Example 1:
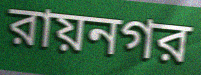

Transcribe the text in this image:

রায়নগর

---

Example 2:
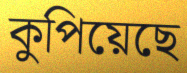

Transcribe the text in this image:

কুপিয়েছে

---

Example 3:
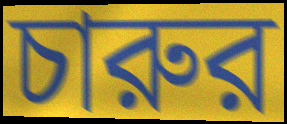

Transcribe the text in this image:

চারুর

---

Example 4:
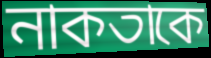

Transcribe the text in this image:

নাকতাকে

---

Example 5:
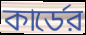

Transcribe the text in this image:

কার্ডের